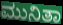
ಮುನಿತಾ